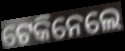
ଟେକିନେଲେ